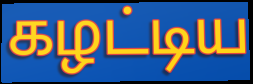
கழட்டிய